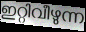
ഇറ്റിവീഴുന്ന